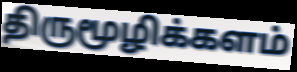
திருமூழிக்களம்